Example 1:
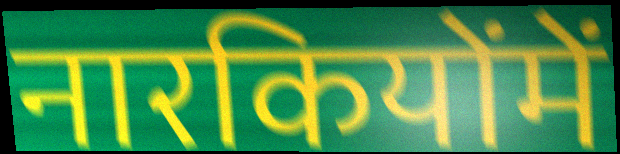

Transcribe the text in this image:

नारकियोंमें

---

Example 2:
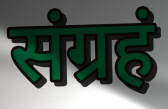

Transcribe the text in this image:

संग्रहं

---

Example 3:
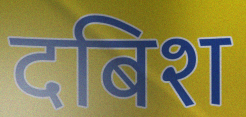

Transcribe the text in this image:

दबिश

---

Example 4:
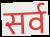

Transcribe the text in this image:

सर्व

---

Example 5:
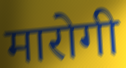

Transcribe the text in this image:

मारोगी